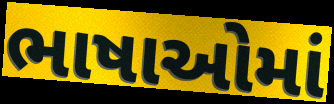
ભાષાઓમાં